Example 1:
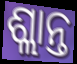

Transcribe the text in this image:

ଶ୍ଲାନ୍ତ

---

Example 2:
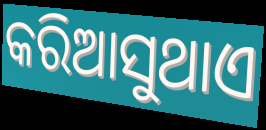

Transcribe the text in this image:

କରିଆସୁଥାଏ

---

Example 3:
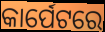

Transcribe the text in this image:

କାର୍ପେଟରେ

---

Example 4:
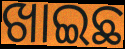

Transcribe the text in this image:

ଖାଇଛ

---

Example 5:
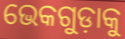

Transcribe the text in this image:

ଭେକଗୁଡ଼ାକୁ